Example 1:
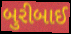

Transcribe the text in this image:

બુરીબાઈ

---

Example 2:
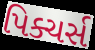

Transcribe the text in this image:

પિક્ચર્સ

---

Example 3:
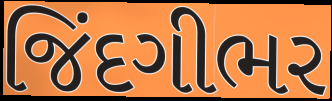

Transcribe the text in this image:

જિંદગીભર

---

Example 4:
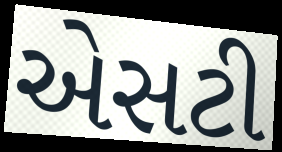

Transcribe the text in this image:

એસટી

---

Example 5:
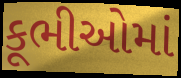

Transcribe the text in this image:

કૂભીઓમાં